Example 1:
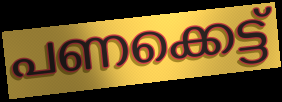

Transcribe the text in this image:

പണക്കെട്ട്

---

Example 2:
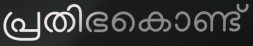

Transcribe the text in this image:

പ്രതിഭകൊണ്ട്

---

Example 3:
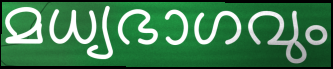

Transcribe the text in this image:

മധ്യഭാഗവും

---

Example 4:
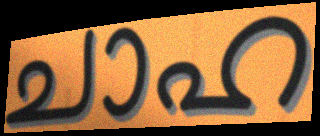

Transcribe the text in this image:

ചാഹ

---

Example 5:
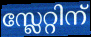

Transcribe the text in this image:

സ്ലേറ്റിന്